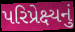
પરિપ્રેક્ષ્યનું